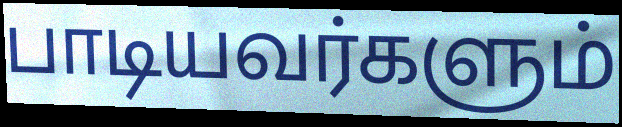
பாடியவர்களும்